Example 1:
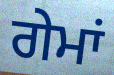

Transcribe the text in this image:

ਗੇਮਾਂ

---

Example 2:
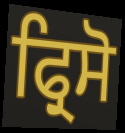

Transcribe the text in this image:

ਫ੍ਰਿਸੋ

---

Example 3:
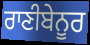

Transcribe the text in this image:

ਰਾਣੀਬੇਨੂਰ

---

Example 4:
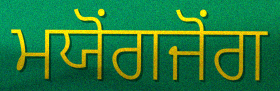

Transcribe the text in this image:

ਮਯੋਂਗਜੋਂਗ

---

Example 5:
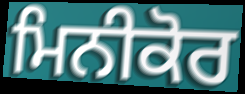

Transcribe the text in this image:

ਮਿਨੀਕੋਰ